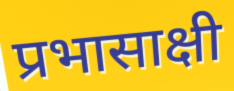
प्रभासाक्षी